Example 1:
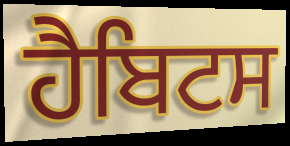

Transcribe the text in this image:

ਹੈਬਿਟਸ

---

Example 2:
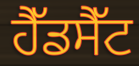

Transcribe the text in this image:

ਹੈੱਡਸੈੱਟ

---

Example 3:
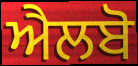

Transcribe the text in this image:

ਐਲਬੋ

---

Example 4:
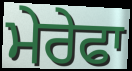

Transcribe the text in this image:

ਮੇਰੇਫਾ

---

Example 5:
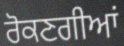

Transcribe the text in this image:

ਰੋਕਣਗੀਆਂ